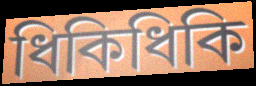
ধিকিধিকি